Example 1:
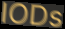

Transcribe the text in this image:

IODs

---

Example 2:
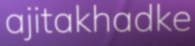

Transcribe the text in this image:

ajitakhadke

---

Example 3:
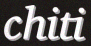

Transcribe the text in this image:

chiti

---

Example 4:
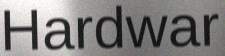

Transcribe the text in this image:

Hardwar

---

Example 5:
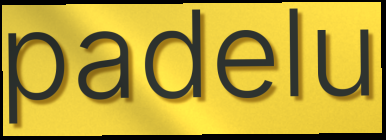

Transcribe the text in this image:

padelu